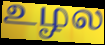
உழல